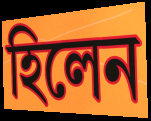
হিলেন